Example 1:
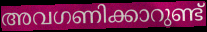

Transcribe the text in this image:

അവഗണിക്കാറുണ്ട്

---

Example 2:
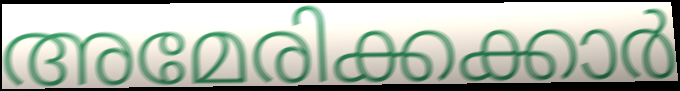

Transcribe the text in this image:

അമേരിക്കക്കാർ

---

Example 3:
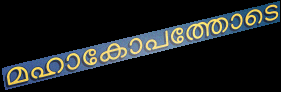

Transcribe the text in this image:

മഹാകോപത്തോടെ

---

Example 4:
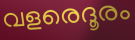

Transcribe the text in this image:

വളരെദൂരം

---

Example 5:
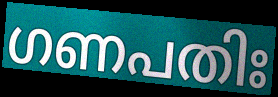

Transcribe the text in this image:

ഗണപതിഃ